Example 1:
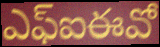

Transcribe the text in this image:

ఎఫ్ఐఈవో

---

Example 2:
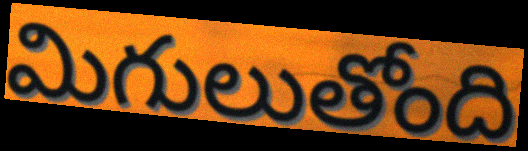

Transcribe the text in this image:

మిగులుతోంది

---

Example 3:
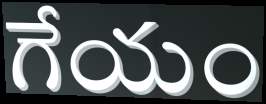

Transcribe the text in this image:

గేయం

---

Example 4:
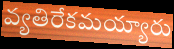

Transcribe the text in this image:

వ్యతిరేకమయ్యారు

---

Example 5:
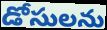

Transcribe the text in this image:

డోసులను